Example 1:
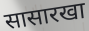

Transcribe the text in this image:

सासारखा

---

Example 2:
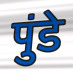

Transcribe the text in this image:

पुंडे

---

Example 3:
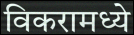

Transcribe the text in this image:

विकरामध्ये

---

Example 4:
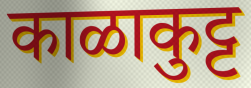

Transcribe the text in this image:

काळाकुट्ट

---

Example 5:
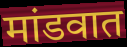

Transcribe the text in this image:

मांडवात